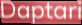
Daptari